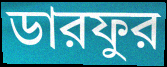
ডারফুর